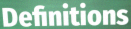
Definitions